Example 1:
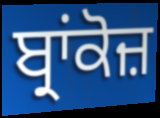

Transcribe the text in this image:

ਬ੍ਰਾਂਕੋਜ਼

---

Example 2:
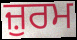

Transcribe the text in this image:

ਜ਼ੁਰਮ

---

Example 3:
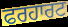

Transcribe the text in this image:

ਫਰਹਾਰਟ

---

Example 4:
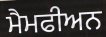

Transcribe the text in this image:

ਮੈਮਫੀਅਨ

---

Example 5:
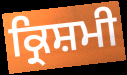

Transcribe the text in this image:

ਕ੍ਰਿਸ਼ਮੀ